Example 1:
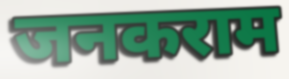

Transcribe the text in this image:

जनकराम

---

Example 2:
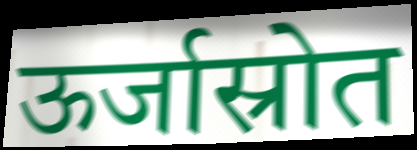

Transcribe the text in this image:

ऊर्जास्रोत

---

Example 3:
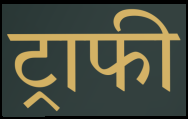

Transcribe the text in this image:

ट्राफी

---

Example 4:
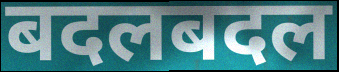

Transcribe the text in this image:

बदलबदल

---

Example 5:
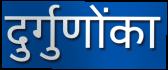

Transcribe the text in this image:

दुर्गुणोंका